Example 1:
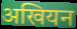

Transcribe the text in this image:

अखियन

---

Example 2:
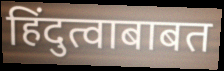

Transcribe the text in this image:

हिंदुत्वाबाबत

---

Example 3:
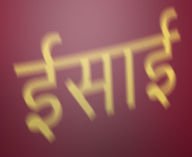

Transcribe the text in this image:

ईसाई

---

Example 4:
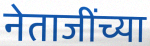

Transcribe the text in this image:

नेताजींच्या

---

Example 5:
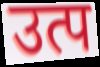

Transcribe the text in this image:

उत्प